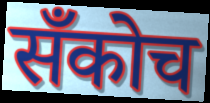
सँकोच